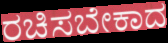
ರಚಿಸಬೇಕಾದ